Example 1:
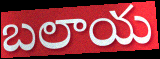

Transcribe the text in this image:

బలాయ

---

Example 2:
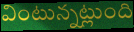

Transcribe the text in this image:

వింటున్నట్లుంది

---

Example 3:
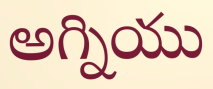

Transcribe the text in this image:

అగ్నియు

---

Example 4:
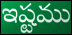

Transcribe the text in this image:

ఇష్టము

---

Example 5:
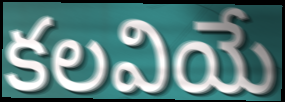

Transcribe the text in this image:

కలవియే